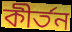
কীর্তন